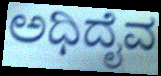
ಅಧಿದೈವ